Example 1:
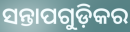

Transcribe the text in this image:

ସନ୍ତାପଗୁଡ଼ିକର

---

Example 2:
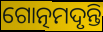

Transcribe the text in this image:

ଗୋତ୍ନମଦୃନ୍ତି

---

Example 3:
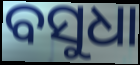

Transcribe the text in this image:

ବସୁଧା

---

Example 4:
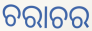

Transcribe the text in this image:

ଚରାଚର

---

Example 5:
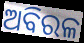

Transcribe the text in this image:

ଅବିରଳ